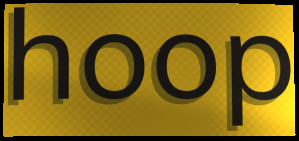
hoop